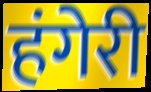
हंगेरी